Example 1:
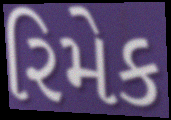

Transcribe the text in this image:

રિમેક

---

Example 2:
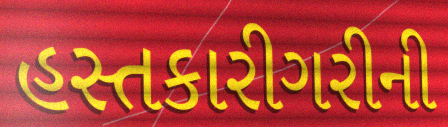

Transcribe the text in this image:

હસ્તકારીગરીની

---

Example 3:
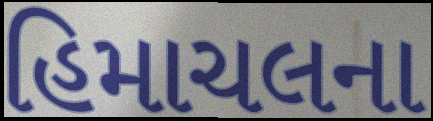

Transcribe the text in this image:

હિમાચલના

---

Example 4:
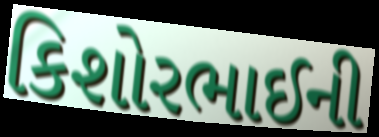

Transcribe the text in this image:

કિશોરભાઈની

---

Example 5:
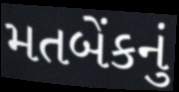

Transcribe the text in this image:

મતબેંકનું